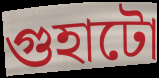
গুহাটো